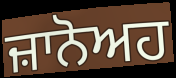
ਜ਼ਾਨੋਅਹ